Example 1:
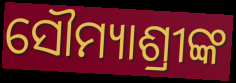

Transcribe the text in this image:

ସୌମ୍ୟାଶ୍ରୀଙ୍କ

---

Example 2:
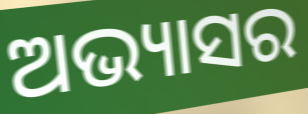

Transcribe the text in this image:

ଅଭ୍ୟାସର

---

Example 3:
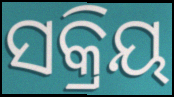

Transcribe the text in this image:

ସକ୍ରିୟ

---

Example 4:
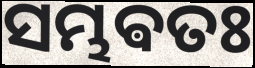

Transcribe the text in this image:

ସମ୍ଭଵତଃ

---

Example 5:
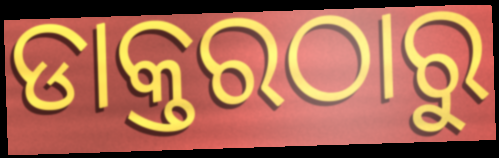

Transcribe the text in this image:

ଡାକ୍ତରଠାରୁ